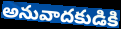
అనువాదకుడికి